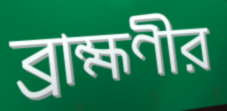
ব্রাহ্মণীর